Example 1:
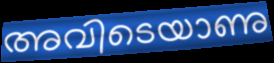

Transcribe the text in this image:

അവിടെയാണു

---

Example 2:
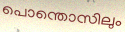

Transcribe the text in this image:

പൊന്തൊസിലും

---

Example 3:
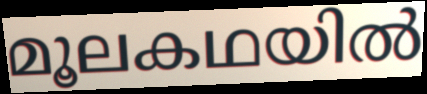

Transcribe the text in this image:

മൂലകഥയിൽ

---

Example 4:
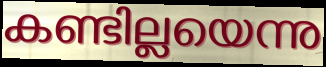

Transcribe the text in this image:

കണ്ടില്ലയെന്നു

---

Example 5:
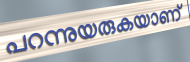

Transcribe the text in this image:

പറന്നുയരുകയാണ്